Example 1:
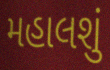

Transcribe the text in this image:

મહાલશું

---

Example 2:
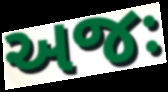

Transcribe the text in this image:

અજઃ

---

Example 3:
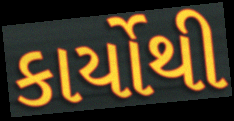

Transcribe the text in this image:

કાર્યોથી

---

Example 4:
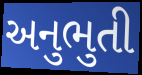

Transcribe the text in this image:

અનુભુતી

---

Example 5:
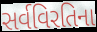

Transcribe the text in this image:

સર્વવિરતિના